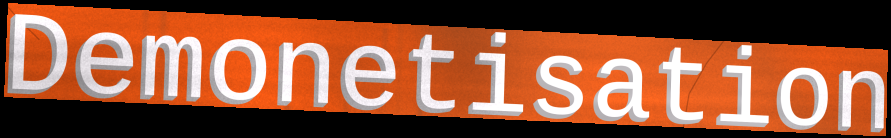
Demonetisation